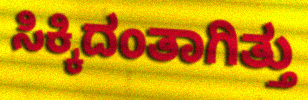
ಸಿಕ್ಕಿದಂತಾಗಿತ್ತು